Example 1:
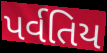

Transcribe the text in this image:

પર્વતિય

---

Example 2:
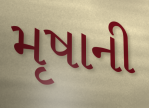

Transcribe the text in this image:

મૃષાની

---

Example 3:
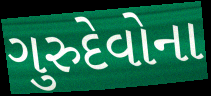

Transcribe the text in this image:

ગુરુદેવોના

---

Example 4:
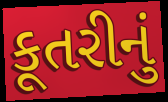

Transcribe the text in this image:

કૂતરીનું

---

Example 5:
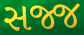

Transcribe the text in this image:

સજ્જ